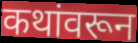
कथांवरून